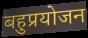
बहुप्रयोजन